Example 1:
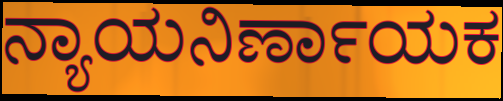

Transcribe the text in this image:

ನ್ಯಾಯನಿರ್ಣಾಯಕ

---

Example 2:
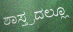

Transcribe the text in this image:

ಶಾಸ್ತ್ರದಲ್ಲೂ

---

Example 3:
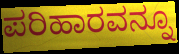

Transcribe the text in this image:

ಪರಿಹಾರವನ್ನೂ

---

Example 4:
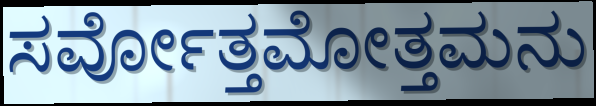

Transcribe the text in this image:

ಸರ್ವೋತ್ತಮೋತ್ತಮನು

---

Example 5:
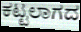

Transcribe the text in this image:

ಕಟ್ಟಲಾಗದ